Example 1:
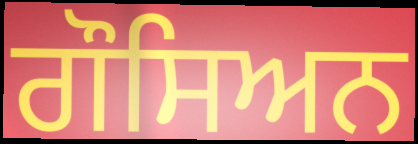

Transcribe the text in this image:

ਗੌਸਿਅਨ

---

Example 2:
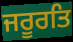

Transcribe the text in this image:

ਜਰੂਰਤਿ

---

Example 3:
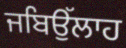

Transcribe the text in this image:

ਜਬਿਉੱਲਾਹ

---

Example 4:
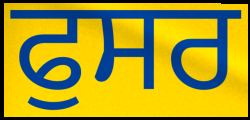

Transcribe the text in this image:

ਫੁਸਰ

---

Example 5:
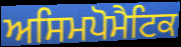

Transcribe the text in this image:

ਅਸਿਮਪੋਮੈਟਿਕ